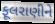
ફૂલરાણીને